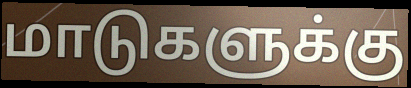
மாடுகளுக்கு